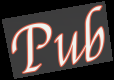
Pub